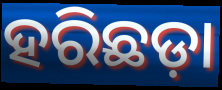
ହରିଛଡ଼ା